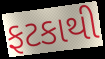
ફટકાથી